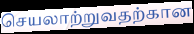
செயலாற்றுவதற்கான